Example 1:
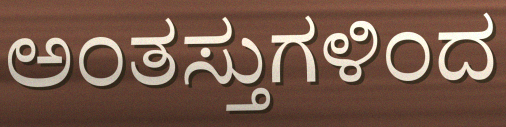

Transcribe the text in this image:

ಅಂತಸ್ತುಗಳಿಂದ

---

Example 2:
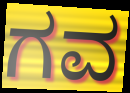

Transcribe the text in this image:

ಗವ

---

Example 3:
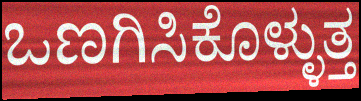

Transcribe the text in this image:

ಒಣಗಿಸಿಕೊಳ್ಳುತ್ತ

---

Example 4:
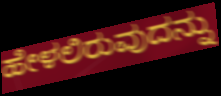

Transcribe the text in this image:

ಹೇಳಲಿರುವುದನ್ನು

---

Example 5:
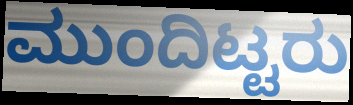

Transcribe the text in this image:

ಮುಂದಿಟ್ಟರು